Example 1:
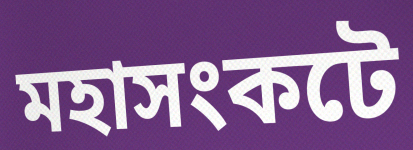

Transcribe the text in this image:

মহাসংকটে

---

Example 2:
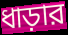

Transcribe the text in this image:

ধাড়ার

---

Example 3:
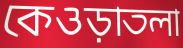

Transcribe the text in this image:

কেওড়াতলা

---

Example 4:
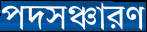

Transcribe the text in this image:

পদসঞ্চারণ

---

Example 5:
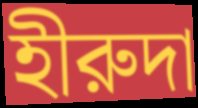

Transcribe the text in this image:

হীরুদা